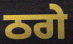
ਠਗੇ